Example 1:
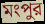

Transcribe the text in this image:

মংপুর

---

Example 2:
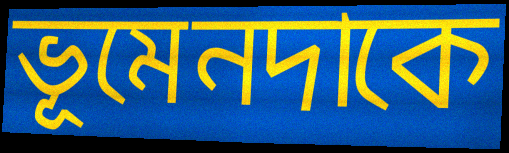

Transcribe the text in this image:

ভূমেনদাকে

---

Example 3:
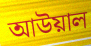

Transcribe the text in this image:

আউয়াল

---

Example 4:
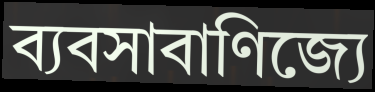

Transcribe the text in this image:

ব্যবসাবাণিজ্যে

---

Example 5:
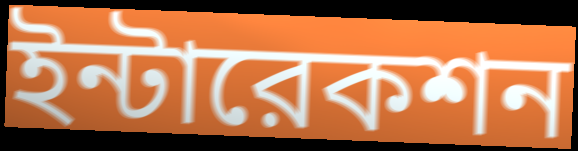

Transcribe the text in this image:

ইন্টারেকশন